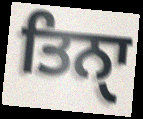
ਤਿਨੑਾ